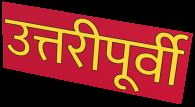
उत्तरीपूर्वी